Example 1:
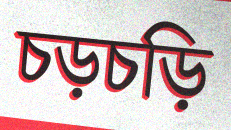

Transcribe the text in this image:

চড়চড়ি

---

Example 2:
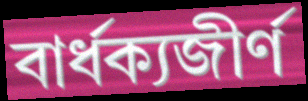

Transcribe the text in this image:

বার্ধক্যজীর্ণ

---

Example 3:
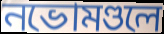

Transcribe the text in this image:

নভোমণ্ডলে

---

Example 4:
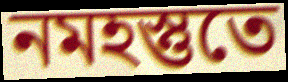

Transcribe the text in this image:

নমহস্তুতে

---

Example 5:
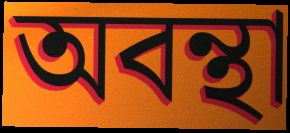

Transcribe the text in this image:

অবন্থা